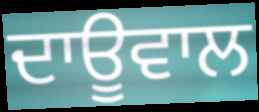
ਦਾਊਵਾਲ